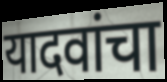
यादवांचा